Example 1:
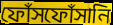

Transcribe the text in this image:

ফোঁসফোঁসানি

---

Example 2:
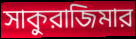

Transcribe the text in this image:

সাকুরাজিমার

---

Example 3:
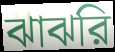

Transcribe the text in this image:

ঝাঝরি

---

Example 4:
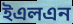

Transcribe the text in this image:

ইএলএন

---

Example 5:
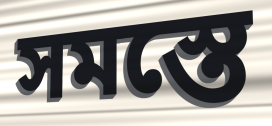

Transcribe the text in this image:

সমস্তে